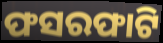
ଫସରଫାଟି